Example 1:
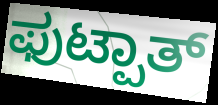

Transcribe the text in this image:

ಫುಟ್ಪಾತ್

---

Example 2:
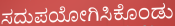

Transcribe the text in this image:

ಸದುಪಯೋಗಿಸಿಕೊಂಡು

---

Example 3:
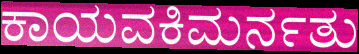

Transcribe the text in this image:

ಕಾಯವಕಿಮರ್ನತು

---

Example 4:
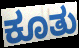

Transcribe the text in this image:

ಕೂತು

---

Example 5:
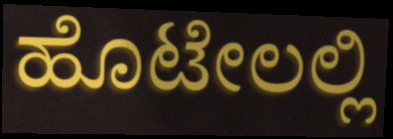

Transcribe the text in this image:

ಹೊಟೇಲಲ್ಲಿ